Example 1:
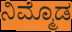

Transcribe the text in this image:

ನಿಮ್ಮೊಡ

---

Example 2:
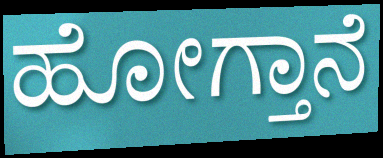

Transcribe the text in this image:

ಹೋಗ್ತಾನೆ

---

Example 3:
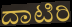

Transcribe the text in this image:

ದಾಟಿರಿ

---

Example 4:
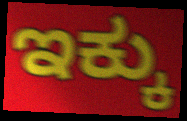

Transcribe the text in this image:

ಇಕ್ಕು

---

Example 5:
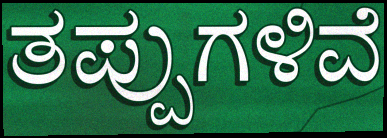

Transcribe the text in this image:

ತಪ್ಪುಗಳಿವೆ